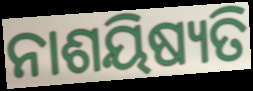
ନାଶୟିଷ୍ୟତି